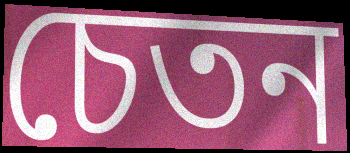
চেতন